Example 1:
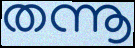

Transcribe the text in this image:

തന്നൂ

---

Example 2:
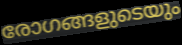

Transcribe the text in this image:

രോഗങ്ങളുടെയും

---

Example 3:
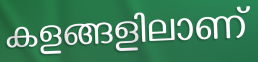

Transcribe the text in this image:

കളങ്ങളിലാണ്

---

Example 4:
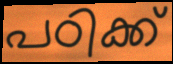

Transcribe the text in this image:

പഠിക്ക്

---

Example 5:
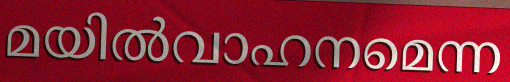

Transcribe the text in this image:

മയിൽവാഹനമെന്ന